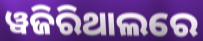
ୱଜିରିଥାଲରେ